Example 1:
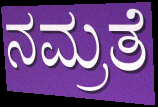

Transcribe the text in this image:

ನಮ್ರತೆ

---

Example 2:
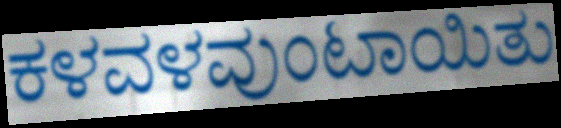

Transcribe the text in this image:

ಕಳವಳವುಂಟಾಯಿತು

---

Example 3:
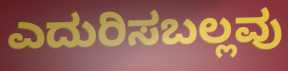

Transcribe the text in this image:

ಎದುರಿಸಬಲ್ಲವು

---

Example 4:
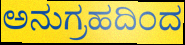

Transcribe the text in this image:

ಅನುಗ್ರಹದಿಂದ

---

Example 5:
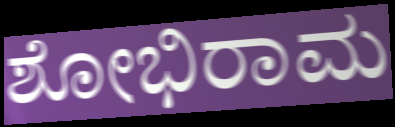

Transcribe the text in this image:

ಶೋಭಿರಾಮ